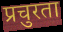
प्रचुरता